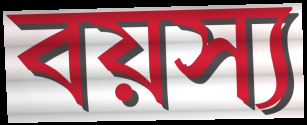
বয়স্য